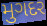
મુગદર